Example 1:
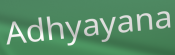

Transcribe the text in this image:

Adhyayana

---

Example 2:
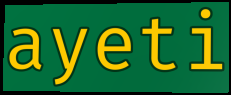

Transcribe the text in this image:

ayeti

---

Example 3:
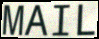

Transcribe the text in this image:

MAIL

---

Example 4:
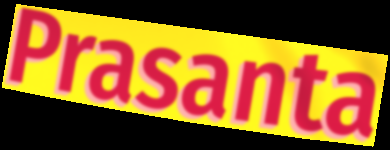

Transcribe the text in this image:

Prasanta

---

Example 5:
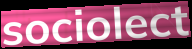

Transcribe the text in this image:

sociolect